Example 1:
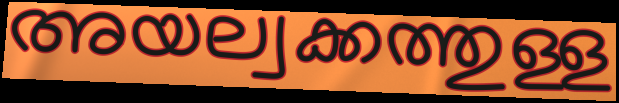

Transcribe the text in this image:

അയല്വക്കത്തുള്ള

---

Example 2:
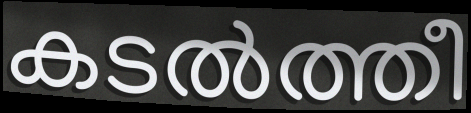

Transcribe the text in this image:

കടൽത്തീ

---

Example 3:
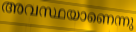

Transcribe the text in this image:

അവസ്ഥയാണെന്നു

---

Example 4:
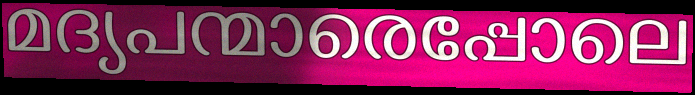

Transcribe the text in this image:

മദ്യപന്മാരെപ്പോലെ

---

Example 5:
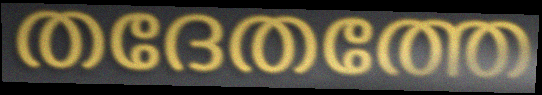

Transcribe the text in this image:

തദേതത്തേ